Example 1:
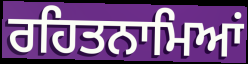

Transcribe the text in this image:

ਰਹਿਤਨਾਮਿਆਂ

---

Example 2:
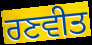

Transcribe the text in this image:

ਰਣਵੀਤ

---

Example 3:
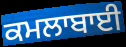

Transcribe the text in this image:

ਕਮਲਾਬਾਈ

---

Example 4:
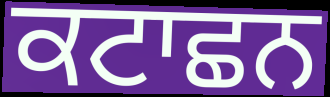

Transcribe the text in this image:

ਕਟਾਛਨ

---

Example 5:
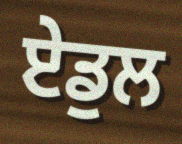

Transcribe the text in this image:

ਏਡੁਲ